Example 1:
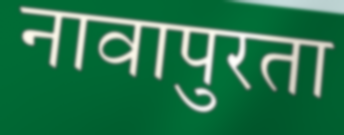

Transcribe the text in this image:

नावापुरता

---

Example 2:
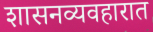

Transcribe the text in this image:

शासनव्यवहारात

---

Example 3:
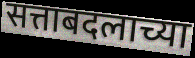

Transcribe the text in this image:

सत्ताबदलाच्या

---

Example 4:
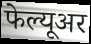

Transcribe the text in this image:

फेल्यूअर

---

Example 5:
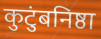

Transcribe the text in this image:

कुटुंबनिष्ठा